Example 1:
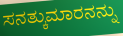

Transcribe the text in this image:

ಸನತ್ಕುಮಾರನನ್ನು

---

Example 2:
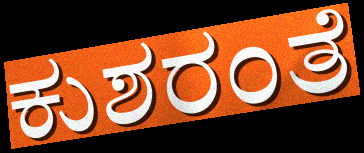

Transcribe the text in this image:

ಕುಶರಂತೆ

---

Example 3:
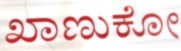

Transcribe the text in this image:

ಖಾಣುಕೋ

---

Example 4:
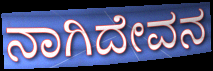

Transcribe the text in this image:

ನಾಗಿದೇವನ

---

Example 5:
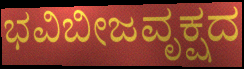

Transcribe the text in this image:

ಭವಿಬೀಜವೃಕ್ಷದ